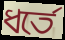
ধর্তে